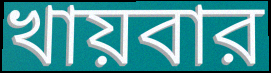
খায়বার